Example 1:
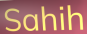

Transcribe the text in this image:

Sahih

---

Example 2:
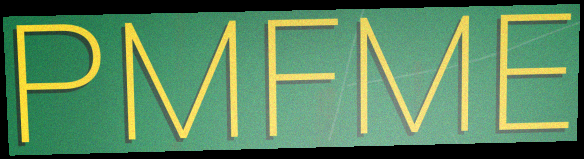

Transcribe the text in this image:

PMFME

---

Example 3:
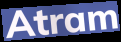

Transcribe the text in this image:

Atram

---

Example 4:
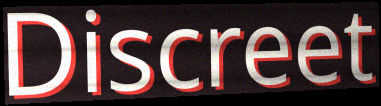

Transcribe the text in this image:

Discreet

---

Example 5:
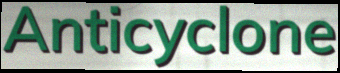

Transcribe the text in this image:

Anticyclone